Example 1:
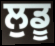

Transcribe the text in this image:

ਲੁਡੂ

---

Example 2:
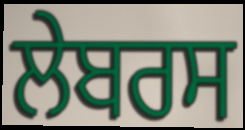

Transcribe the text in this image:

ਲੇਬਰਸ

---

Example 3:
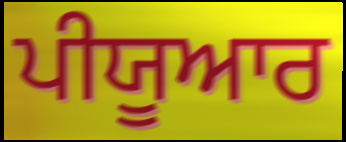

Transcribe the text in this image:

ਪੀਯੂਆਰ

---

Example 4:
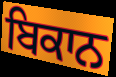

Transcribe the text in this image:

ਬਿਕਾਨ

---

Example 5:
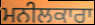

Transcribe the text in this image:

ਮਨੀਲਕਾਰਾ